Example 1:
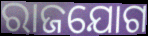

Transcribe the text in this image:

ରାଜଯୋଗ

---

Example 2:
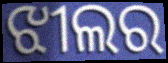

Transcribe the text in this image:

ଝୀଲର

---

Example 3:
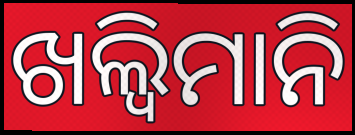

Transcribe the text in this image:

ଖଲ୍ୱିମାନି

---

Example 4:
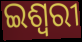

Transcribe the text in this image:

ଇଶ୍ୱରୀ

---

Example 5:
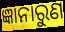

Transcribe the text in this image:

ଜ୍ଞାନାରୁଣ